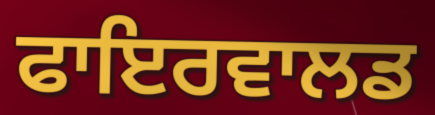
ਫਾਇਰਵਾਲਡ